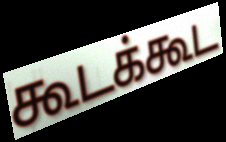
கூடக்கூட